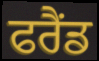
ਫਰੈਂਡ